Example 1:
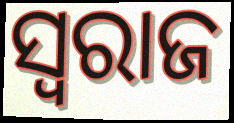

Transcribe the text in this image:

ସ୍ଵରାଜ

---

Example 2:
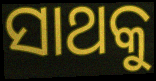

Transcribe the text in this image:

ସାଥକୁ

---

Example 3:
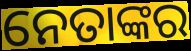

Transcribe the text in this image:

ନେତାଙ୍କର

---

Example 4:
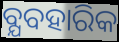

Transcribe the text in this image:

ବ୍ଯବହାରିକ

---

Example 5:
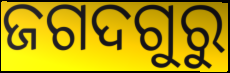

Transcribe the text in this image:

ଜଗଦଗୁରୁ